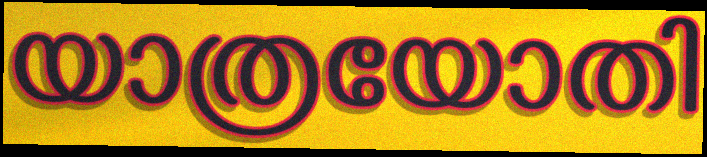
യാത്രയോതി